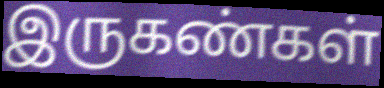
இருகண்கள்